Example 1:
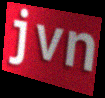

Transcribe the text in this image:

jvn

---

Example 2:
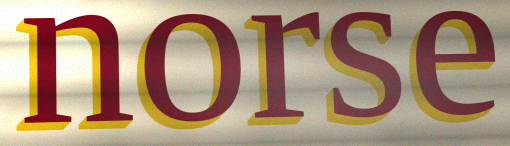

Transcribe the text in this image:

norse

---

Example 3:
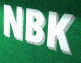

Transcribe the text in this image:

NBK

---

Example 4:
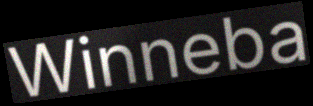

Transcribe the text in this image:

Winneba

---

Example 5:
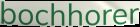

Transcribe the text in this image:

bochhorer